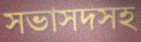
সভাসদসহ